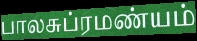
பாலசுப்ரமண்யம்